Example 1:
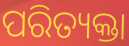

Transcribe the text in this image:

ପରିତ୍ୟକ୍ତା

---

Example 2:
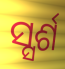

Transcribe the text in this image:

ସ୍ସର୍ଶ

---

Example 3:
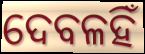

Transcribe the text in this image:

ଦେବଳହିଁ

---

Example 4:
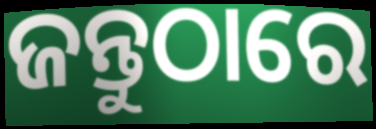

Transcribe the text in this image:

ଜନ୍ତୁଠାରେ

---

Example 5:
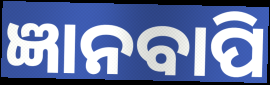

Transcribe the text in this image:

ଜ୍ଞାନବାପି